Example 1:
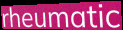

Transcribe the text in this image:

rheumatic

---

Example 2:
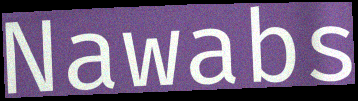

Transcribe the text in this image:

Nawabs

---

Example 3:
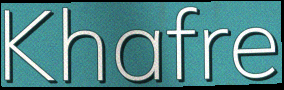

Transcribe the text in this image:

Khafre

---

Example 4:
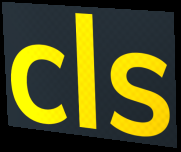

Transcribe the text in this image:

cls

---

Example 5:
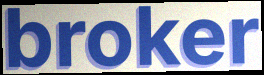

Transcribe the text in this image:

broker